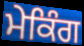
ਮੇਕਿੰਗ